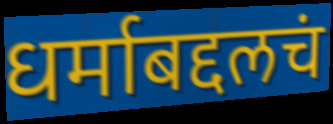
धर्माबद्दलचं